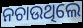
ନଚାଉଥିଲେ